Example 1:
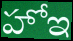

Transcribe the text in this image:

హోఇ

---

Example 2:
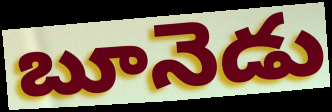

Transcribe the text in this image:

బూనెడు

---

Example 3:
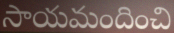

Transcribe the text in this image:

సాయమందించి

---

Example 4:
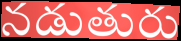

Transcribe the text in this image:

నడుతురు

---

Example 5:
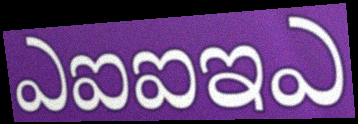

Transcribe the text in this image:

ఎఐఐఇఎ